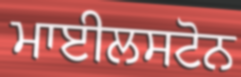
ਮਾਈਲਸਟੋਨ